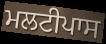
ਮਲਟੀਪਾਸ